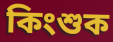
কিংশুক